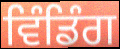
ਵਿੰਡਿੰਗ